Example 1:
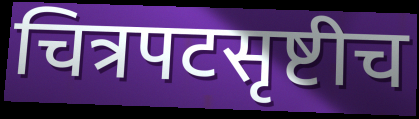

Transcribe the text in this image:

चित्रपटसृष्टीच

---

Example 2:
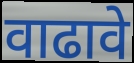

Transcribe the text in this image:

वाढावे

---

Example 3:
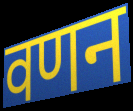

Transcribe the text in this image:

वणन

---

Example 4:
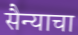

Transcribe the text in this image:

सैन्याचा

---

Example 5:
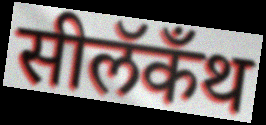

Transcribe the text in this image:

सीलॅकँथ